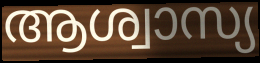
ആശ്വാസ്യ